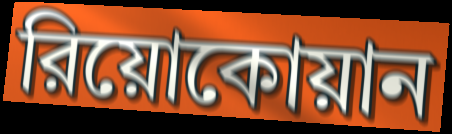
রিয়োকোয়ান